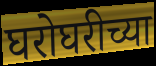
घरोघरीच्या